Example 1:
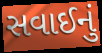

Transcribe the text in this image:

સવાઈનું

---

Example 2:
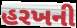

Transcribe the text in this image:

હરખની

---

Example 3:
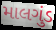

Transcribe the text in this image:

માલગુંડ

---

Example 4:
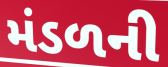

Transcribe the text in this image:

મંડળની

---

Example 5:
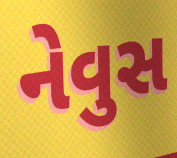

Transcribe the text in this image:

નેવુસ